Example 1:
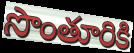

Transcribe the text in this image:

సొంతూరికి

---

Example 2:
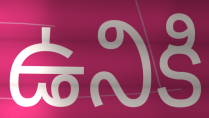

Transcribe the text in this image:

ఉనికి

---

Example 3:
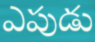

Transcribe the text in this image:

ఎపుడు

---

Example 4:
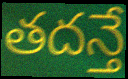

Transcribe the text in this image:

తదన్తే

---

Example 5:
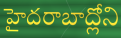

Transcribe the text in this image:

హైదరాబాద్లోని